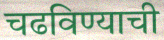
चढविण्याची